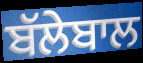
ਬੱਲੇਬਾਲ